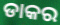
ଡାକର